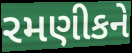
રમણીકને